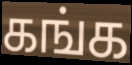
கங்க